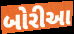
બોરીઆ